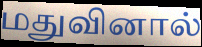
மதுவினால்